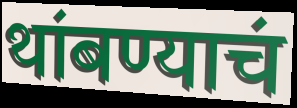
थांबण्याचं